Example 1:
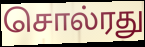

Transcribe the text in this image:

சொல்ரது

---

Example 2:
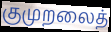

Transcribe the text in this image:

குமுறலைத்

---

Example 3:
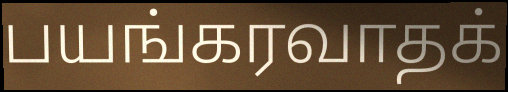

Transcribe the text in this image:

பயங்கரவாதக்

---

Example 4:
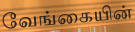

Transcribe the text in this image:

வேங்கையின்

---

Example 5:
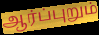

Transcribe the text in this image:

ஆர்ப்புறும்